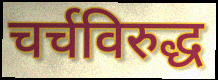
चर्चविरुद्ध